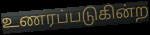
உணரப்படுகின்ற